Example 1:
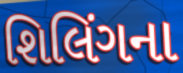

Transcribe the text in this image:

શિલિંગના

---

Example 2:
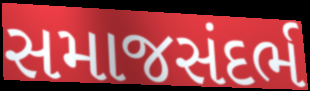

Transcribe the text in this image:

સમાજસંદર્ભ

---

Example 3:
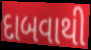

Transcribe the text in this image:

દાબવાથી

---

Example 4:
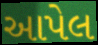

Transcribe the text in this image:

આપેલ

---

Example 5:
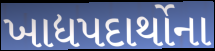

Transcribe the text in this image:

ખાદ્યપદાર્થોના